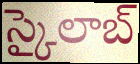
స్కైలాబ్